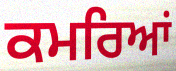
ਕਮਰਿਆਂ